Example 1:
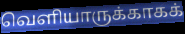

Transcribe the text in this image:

வெளியாருக்காகக்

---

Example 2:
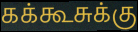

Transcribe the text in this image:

கக்கூசுக்கு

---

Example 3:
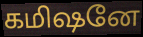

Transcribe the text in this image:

கமிஷனே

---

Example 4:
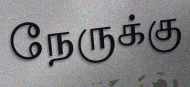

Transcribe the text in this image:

நேருக்கு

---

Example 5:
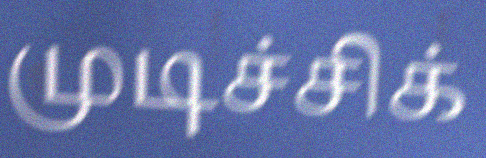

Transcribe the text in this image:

முடிச்சிக்